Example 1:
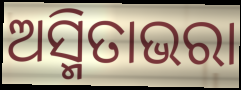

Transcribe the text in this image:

ଅସ୍ମିତାଭରା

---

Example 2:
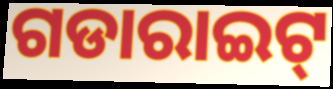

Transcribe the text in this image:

ଗଡାରାଇଟ୍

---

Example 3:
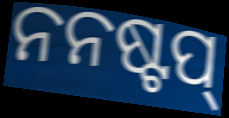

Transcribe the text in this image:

ନନଷ୍ଟପ୍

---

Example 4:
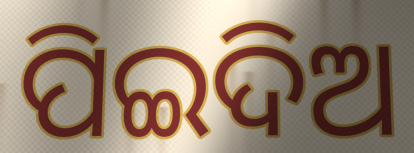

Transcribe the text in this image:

ପିଇଦିଅ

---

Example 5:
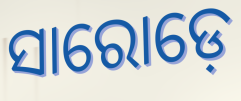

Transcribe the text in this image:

ସାରୋଡ଼େ